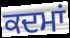
ਕਦਮਾਂ